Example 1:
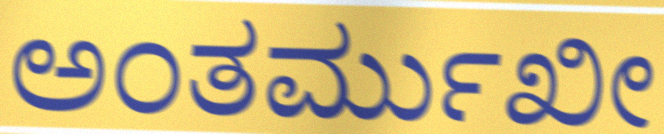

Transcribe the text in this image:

ಅಂತರ್ಮುಖೀ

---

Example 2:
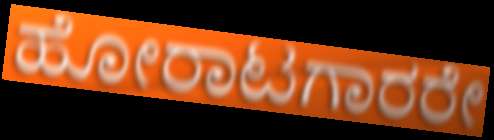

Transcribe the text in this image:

ಹೋರಾಟಗಾರರೇ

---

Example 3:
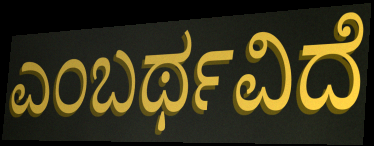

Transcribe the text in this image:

ಎಂಬರ್ಥವಿದೆ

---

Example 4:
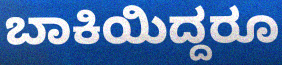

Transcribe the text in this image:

ಬಾಕಿಯಿದ್ದರೂ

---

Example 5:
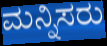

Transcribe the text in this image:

ಮನ್ನಿಸರು